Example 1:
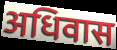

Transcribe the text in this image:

अधिवास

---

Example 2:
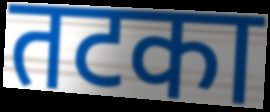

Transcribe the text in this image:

तटका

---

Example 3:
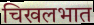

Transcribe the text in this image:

चिखलभात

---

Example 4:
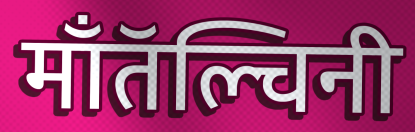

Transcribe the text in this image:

माँतॅल्चिनी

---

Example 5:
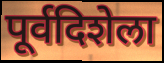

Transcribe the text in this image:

पूर्वदिशेला